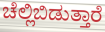
ಚೆಲ್ಲಿಬಿಡುತ್ತಾರೆ